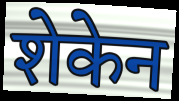
शेकेन